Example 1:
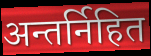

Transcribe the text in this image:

अन्तर्निहित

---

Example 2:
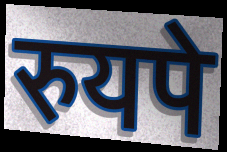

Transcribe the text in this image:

रुयपे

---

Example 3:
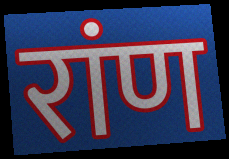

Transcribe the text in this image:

रांण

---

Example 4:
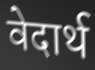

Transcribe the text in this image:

वेदार्थ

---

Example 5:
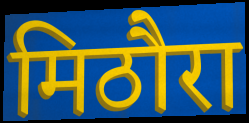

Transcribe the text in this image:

मिठौरा